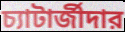
চ্যাটার্জীদার